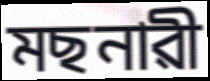
মছনাৱী